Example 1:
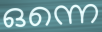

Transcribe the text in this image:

ഒന്നെ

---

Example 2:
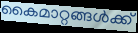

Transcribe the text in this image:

കൈമാറ്റങ്ങൾക്ക്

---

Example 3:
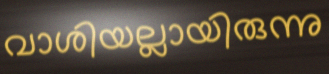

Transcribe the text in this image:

വാശിയല്ലായിരുന്നു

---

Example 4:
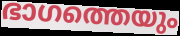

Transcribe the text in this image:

ഭാഗത്തെയും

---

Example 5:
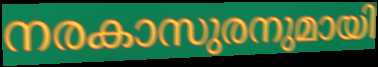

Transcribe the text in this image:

നരകാസുരനുമായി